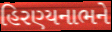
હિરણ્યનાભને